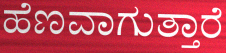
ಹೆಣವಾಗುತ್ತಾರೆ